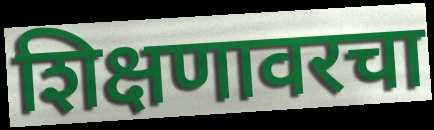
शिक्षणावरचा